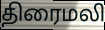
திரைமலி